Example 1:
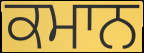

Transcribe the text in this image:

ਕਮਾਨ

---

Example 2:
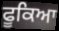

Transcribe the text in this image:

ਫੂਕਿਆ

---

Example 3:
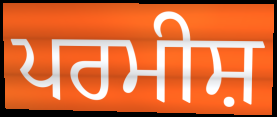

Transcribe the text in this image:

ਪਰਮੀਸ਼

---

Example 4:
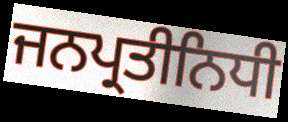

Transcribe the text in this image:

ਜਨਪ੍ਰਤੀਨਿਧੀ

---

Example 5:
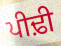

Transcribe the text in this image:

ਪੀਢ਼ੀ